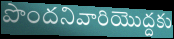
పొందనివారియొద్దకు